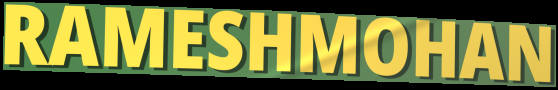
RAMESHMOHAN